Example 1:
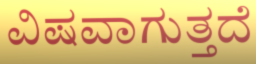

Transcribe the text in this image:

ವಿಷವಾಗುತ್ತದೆ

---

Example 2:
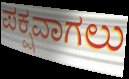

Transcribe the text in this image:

ಪಕ್ಷವಾಗಲು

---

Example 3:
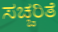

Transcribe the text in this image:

ಸಚ್ಚರಿತೆ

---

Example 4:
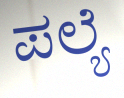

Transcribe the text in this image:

ಪಲ್ಯೆ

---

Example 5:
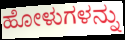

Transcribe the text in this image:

ಹೋಳುಗಳನ್ನು